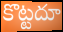
కొట్టదూ